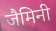
जैमिनी